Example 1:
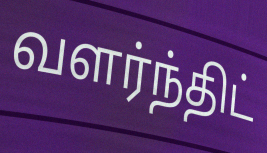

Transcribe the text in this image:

வளர்ந்திட்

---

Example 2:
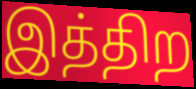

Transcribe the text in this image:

இத்திற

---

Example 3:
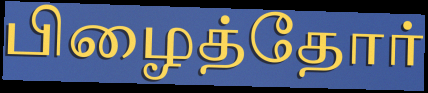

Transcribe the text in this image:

பிழைத்தோர்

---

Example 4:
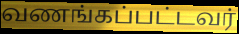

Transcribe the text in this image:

வணங்கப்பட்டவர்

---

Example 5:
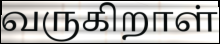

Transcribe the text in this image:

வருகிறாள்